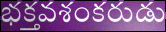
భక్తవశంకరుడు